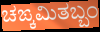
ಚಙ್ಕಮಿತಬ್ಬಂ